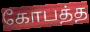
கோபத்த